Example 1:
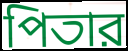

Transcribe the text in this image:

পিতার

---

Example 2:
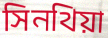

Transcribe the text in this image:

সিনথিয়া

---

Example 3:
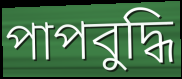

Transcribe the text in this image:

পাপবুদ্ধি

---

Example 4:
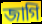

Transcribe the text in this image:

জাগি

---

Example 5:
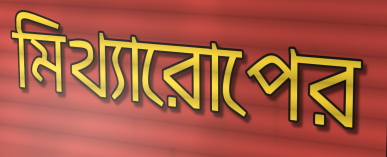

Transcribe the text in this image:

মিথ্যারোপের